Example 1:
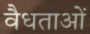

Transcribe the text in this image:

वैधताओं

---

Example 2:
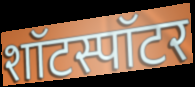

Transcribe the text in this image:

शॉटस्पॉटर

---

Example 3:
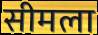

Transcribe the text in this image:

सीमला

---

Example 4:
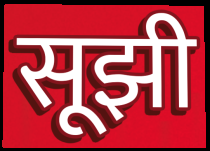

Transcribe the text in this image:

सूझी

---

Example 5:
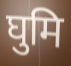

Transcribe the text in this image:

घुमि